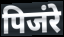
पिजंरे